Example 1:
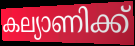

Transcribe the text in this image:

കല്യാണിക്ക്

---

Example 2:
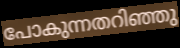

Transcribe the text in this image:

പോകുന്നതറിഞ്ഞു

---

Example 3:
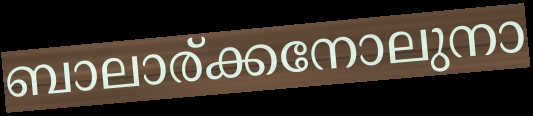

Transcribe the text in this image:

ബാലാര്ക്കനോലുനാ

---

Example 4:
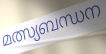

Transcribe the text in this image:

മത്സ്യബന്ധന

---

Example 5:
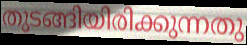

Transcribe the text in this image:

തുടങ്ങിയിരിക്കുന്നതു